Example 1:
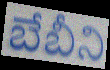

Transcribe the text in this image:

బేబీని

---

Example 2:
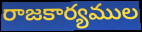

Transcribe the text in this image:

రాజకార్యముల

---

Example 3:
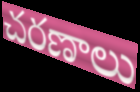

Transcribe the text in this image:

చరణాలు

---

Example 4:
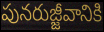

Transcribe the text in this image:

పునరుజ్జీవానికి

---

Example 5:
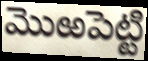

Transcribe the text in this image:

మొఱపెట్టి